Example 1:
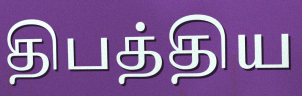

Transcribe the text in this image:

திபத்திய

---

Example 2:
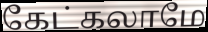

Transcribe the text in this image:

கேட்கலாமே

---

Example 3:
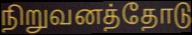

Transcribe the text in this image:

நிறுவனத்தோடு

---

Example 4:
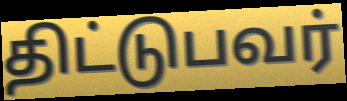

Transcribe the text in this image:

திட்டுபவர்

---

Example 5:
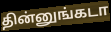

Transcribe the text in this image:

தின்னுங்கடா